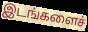
இடங்களைச்